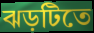
ঝড়টিতে